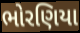
ભોરણિયા